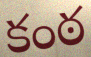
కంఠ